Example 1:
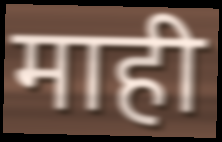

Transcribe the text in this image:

माही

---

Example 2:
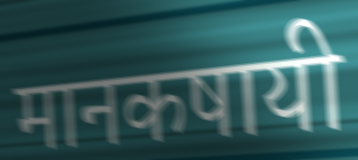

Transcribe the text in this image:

मानकषायी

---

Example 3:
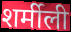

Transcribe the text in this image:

शर्मीली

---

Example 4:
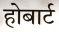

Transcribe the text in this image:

होबार्ट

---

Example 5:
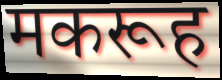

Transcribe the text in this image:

मकरूह